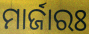
ମାର୍ଜାରଃ